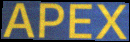
APEX